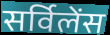
सर्विलेंस